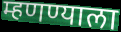
म्हणण्याला